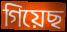
গিয়েছ